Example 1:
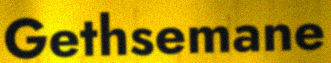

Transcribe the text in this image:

Gethsemane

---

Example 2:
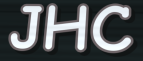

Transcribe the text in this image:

JHC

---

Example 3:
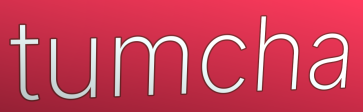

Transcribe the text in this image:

tumcha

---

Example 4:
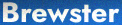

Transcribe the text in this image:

Brewster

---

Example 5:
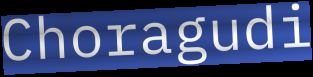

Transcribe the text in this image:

Choragudi